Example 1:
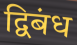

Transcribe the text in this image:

द्विबंध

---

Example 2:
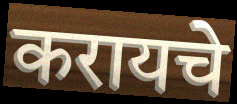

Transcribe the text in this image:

करायचे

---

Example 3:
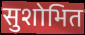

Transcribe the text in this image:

सुशोभित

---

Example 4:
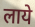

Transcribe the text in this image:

लाये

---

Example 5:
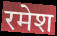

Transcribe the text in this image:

रमेश